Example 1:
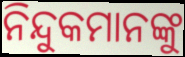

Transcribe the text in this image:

ନିନ୍ଦୁକମାନଙ୍କୁ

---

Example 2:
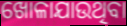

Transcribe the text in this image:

ଖୋଳାଯାଉଥିବା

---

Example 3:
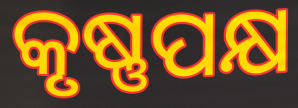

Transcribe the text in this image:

କୃଷ୍ଣପକ୍ଷ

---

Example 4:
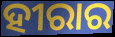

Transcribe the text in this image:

ହୀରାର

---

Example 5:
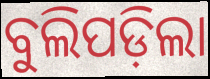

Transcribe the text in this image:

ବୁଲିପଡ଼ିଲା